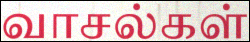
வாசல்கள்